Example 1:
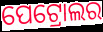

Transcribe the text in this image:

ପେଟ୍ରୋଲର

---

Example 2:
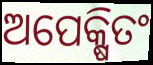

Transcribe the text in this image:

ଅପେକ୍ଷିତଂ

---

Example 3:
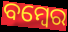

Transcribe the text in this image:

ବମ୍ୱେର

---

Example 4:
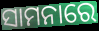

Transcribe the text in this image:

ସାମନାରେ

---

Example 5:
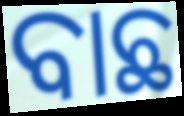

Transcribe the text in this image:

ବାଛ